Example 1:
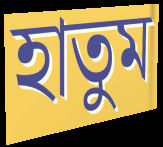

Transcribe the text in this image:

হাতুম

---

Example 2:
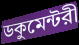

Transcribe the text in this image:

ডকুমেন্টরী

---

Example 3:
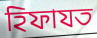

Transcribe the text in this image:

হিফাযত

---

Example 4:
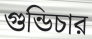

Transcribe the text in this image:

গুন্ডিচার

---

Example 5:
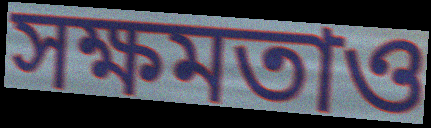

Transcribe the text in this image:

সক্ষমতাও